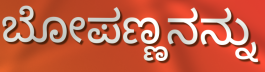
ಬೋಪಣ್ಣನನ್ನು